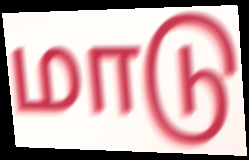
மாடு